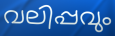
വലിപ്പവും